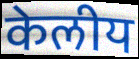
केलीय